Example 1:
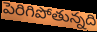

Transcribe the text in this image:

పెరిగిపోతున్నది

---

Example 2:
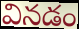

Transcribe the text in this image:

వినడం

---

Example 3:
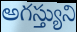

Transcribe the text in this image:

అగస్త్యుని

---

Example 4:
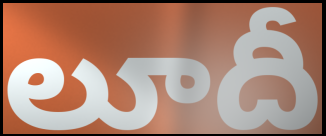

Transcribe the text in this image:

లూదీ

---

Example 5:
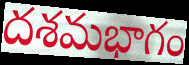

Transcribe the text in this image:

దశమభాగం